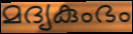
മദ്യകുംഭം